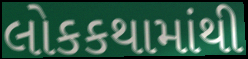
લોકકથામાંથી